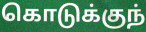
கொடுக்குந்